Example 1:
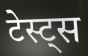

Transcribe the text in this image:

टेस्ट्स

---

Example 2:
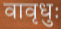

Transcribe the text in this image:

वावृधुः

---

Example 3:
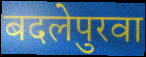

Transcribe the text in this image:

बदलेपुरवा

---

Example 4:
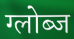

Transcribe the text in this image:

ग्लोब्ज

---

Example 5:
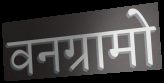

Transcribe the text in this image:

वनग्रामो